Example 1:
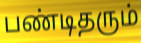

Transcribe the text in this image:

பண்டிதரும்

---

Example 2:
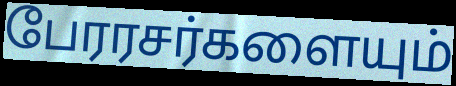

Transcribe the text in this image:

பேரரசர்களையும்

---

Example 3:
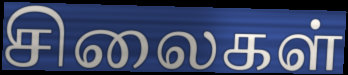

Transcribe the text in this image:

சிலைகள்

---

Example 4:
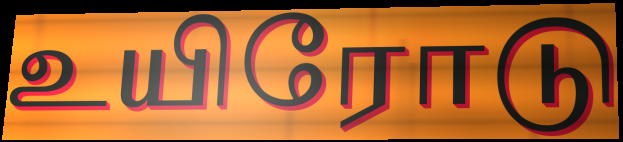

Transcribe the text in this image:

உயிரோடு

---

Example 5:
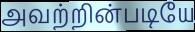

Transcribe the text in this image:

அவற்றின்படியே